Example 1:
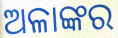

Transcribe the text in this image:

ଅଳାଙ୍କର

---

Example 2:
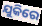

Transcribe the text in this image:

ଯୁକିରେ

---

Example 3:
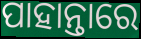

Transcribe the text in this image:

ପାହାନ୍ତାରେ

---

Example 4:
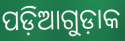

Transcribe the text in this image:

ପଡ଼ିଆଗୁଡ଼ାକ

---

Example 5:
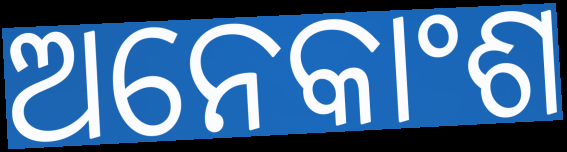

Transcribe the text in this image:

ଅନେକାଂଶ